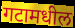
गटामधील